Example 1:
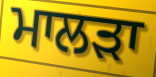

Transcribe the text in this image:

ਮਾਲੜਾ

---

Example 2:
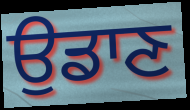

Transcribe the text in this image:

ਉਡਾਣ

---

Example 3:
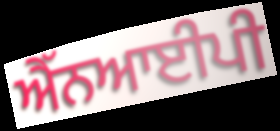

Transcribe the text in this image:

ਐੱਨਆਈਪੀ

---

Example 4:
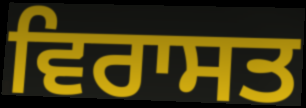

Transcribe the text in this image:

ਵਿਰਾਸਤ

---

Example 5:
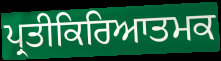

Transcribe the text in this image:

ਪ੍ਰਤੀਕਿਰਿਆਤਮਕ